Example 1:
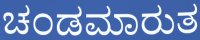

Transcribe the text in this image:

ಚಂಡಮಾರುತ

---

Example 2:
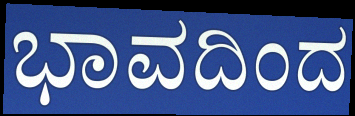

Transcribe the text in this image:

ಭಾವದಿಂದ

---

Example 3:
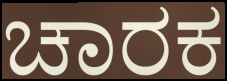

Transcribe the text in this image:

ಚಾರಕ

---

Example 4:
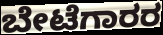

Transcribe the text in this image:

ಬೇಟೆಗಾರರ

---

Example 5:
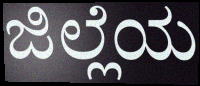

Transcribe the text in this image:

ಜಿಲ್ಲೆಯ